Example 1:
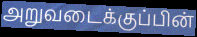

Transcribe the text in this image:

அறுவடைக்குப்பின்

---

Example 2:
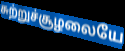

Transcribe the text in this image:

சுற்றுச்சூழலையே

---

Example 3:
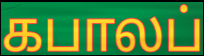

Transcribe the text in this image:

கபாலப்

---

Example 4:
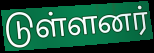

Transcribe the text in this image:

டுள்ளனர்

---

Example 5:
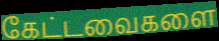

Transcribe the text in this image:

கேட்டவைகளை